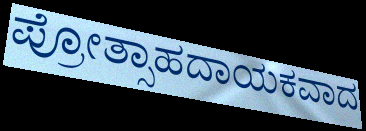
ಪ್ರೋತ್ಸಾಹದಾಯಕವಾದ